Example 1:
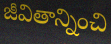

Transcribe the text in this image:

జీవితాన్నించి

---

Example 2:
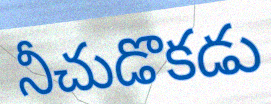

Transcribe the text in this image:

నీచుడొకడు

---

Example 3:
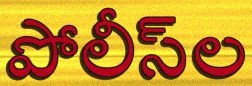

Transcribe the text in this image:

పోలీస్‌ల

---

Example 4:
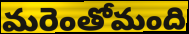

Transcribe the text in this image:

మరెంతోమంది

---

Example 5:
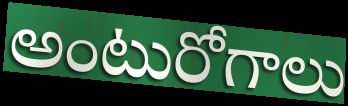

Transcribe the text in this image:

అంటురోగాలు